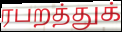
ரபறத்துக்